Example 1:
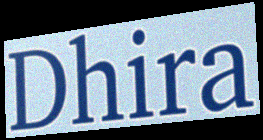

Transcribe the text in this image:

Dhira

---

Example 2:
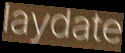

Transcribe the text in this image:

laydate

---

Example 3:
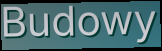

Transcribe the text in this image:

Budowy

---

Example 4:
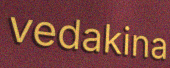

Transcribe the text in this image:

vedakina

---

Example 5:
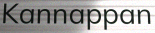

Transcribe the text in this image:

Kannappan